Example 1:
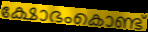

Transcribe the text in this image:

ക്ഷോഭംകൊണ്ട്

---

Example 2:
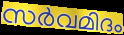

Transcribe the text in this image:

സർവമിദം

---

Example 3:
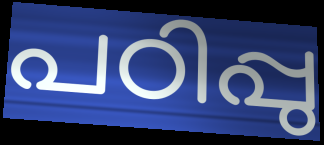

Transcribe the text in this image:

പഠിപ്പു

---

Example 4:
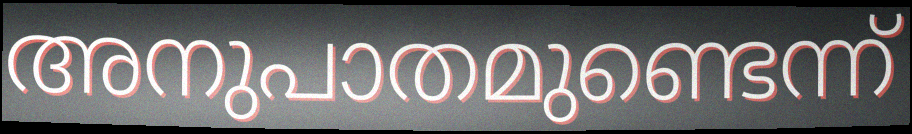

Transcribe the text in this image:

അനുപാതമുണ്ടെന്ന്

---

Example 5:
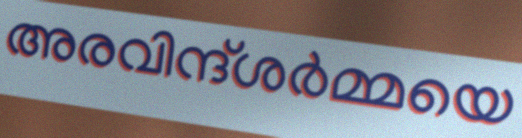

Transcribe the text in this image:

അരവിന്ദ്ശർമ്മയെ